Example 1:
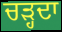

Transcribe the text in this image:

ਚੜ੍ਹਦਾ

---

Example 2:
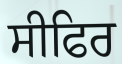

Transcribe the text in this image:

ਸੀਫਿਰ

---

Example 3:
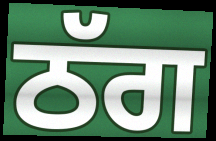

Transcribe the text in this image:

ਠੱਗ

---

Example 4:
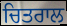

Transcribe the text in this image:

ਚਿਤਰਾਲ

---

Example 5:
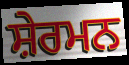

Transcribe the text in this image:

ਸ਼ੇਰਮਨ